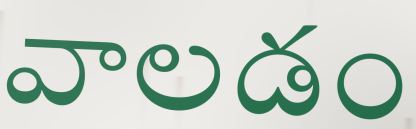
వాలడం